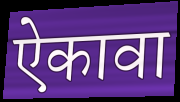
ऐकावा